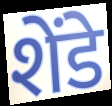
शेंडे